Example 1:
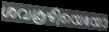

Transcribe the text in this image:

ശവകൂഴിയെയോ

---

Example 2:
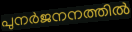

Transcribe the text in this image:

പുനർജനനത്തിൽ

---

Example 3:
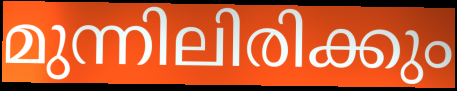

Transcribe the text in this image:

മുന്നിലിരിക്കും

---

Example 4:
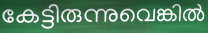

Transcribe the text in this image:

കേട്ടിരുന്നുവെങ്കിൽ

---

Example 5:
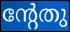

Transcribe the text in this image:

ന്റേതു